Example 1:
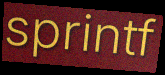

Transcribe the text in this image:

sprintf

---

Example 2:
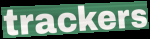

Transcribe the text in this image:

trackers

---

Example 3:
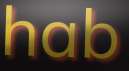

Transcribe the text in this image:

hab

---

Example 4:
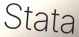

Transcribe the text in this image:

Stata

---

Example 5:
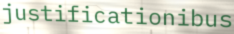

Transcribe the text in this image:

justificationibus